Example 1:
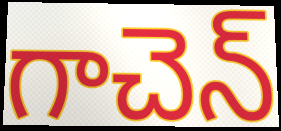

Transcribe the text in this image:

గాచెన్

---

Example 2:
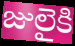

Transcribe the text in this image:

జులైకి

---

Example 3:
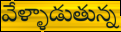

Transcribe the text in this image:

వేళ్ళాడుతున్న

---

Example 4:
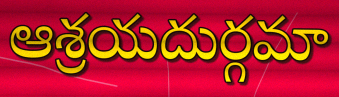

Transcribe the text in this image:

ఆశ్రయదుర్గమా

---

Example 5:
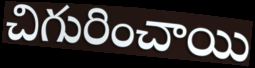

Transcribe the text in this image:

చిగురించాయి